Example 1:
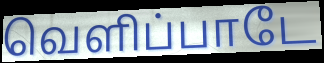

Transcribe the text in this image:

வெளிப்பாடே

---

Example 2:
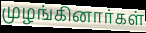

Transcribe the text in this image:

முழங்கினார்கள்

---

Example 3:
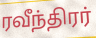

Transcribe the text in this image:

ரவீந்திரர்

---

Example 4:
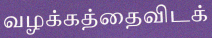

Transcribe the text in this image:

வழக்கத்தைவிடக்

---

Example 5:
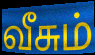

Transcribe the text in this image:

வீசும்